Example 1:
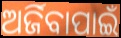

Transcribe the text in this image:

ଅର୍ଜିବାପାଇଁ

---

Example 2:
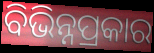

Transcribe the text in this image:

ବିଭିନ୍ନପ୍ରକାର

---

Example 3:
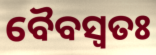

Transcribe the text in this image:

ବୈବସ୍ଵତଃ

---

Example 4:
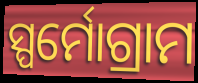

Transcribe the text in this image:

ସ୍ପର୍ମୋଗ୍ରାମ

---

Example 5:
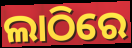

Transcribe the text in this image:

ଲାଠିରେ